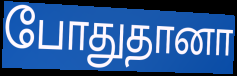
போதுதானா